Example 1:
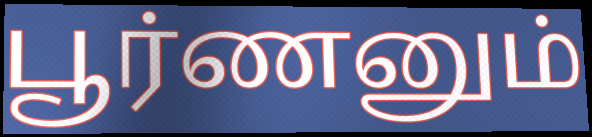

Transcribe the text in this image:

பூர்ணனும்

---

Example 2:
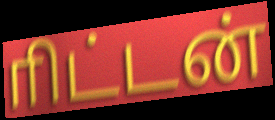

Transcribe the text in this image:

ரிட்டன்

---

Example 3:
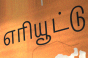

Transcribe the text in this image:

எரியூட்டு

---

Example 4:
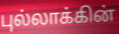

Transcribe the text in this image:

புல்லாக்கின்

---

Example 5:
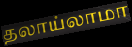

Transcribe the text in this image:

தலாய்லாமா